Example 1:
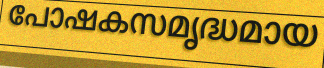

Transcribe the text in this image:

പോഷകസമൃദ്ധമായ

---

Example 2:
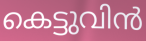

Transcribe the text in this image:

കെട്ടുവിൻ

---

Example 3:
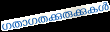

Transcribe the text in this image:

ഗതാഗതക്കുരുക്കുകൾ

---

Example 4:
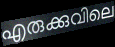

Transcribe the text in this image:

എരുക്കുവിലെ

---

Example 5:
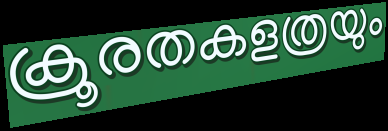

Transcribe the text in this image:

ക്രൂരതകളത്രയും